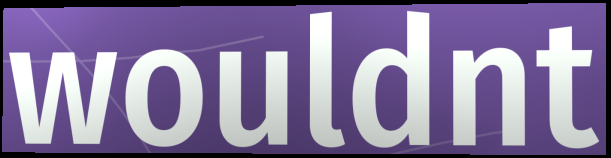
wouldnt